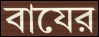
বাযের